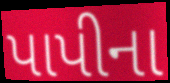
પાપીના